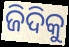
ଜିଦିକୁ